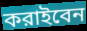
করাইবেন